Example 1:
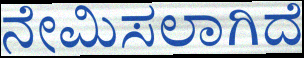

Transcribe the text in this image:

ನೇಮಿಸಲಾಗಿದೆ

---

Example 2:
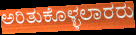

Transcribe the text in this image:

ಅರಿತುಕೊಳ್ಳಲಾರರು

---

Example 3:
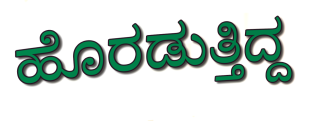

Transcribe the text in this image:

ಹೊರಡುತ್ತಿದ್ದ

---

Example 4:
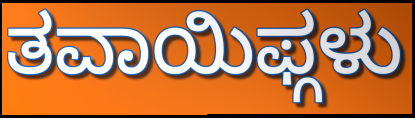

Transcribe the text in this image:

ತವಾಯಿಫ್ಗಳು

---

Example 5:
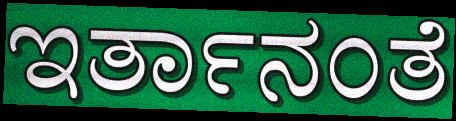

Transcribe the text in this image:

ಇರ್ತಾನಂತೆ